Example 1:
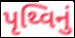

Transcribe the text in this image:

પૃથ્વિનું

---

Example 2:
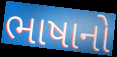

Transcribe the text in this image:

ભાષાનો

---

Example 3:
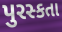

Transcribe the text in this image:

પુરસ્કતા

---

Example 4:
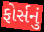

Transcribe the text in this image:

ફોર્સનું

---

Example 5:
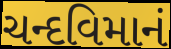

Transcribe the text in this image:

ચન્દવિમાનં